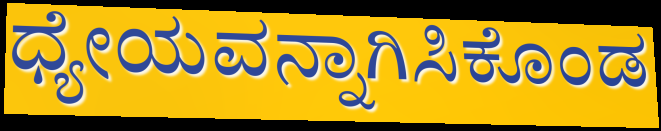
ಧ್ಯೇಯವನ್ನಾಗಿಸಿಕೊಂಡ